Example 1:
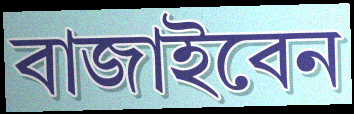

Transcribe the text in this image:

বাজাইবেন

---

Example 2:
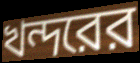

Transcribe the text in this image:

খন্দরের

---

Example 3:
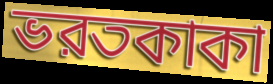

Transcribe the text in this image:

ভরতকাকা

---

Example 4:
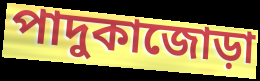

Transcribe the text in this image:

পাদুকাজোড়া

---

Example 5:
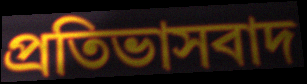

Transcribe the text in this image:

প্রতিভাসবাদ